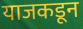
याजकडून